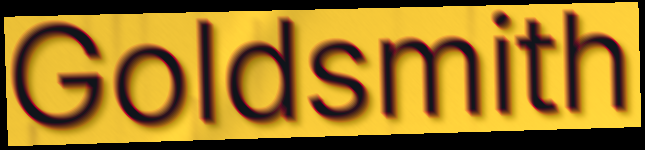
Goldsmith